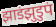
झाडंझुडुपं